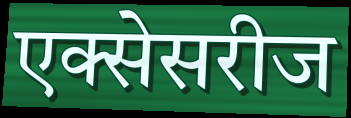
एक्सेसरीज